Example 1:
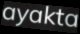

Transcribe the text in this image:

ayakta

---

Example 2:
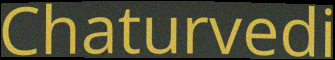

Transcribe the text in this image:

Chaturvedi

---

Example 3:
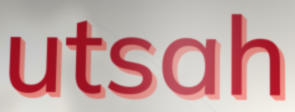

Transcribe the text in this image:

utsah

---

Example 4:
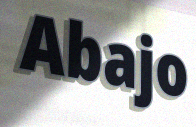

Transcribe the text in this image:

Abajo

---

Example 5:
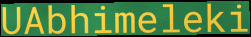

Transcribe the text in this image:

UAbhimeleki